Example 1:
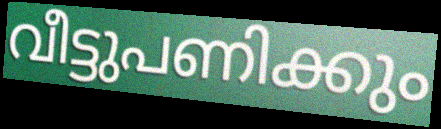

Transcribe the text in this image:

വീട്ടുപണിക്കും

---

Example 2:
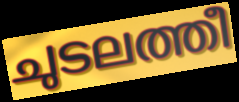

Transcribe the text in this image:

ചുടലത്തീ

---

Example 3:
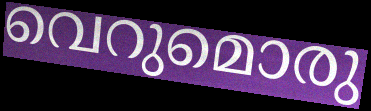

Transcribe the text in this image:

വെറുമൊരു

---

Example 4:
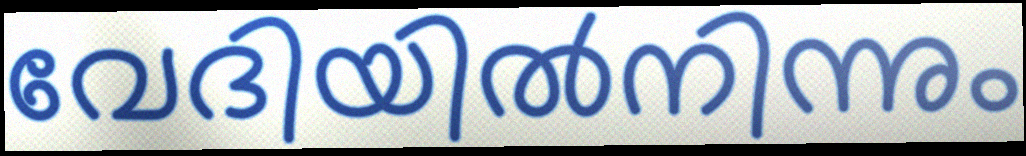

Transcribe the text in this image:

വേദിയിൽനിന്നും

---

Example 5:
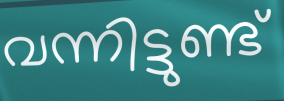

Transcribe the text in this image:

വന്നിട്ടുണ്ട്